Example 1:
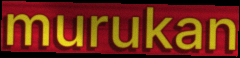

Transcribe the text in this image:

murukan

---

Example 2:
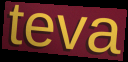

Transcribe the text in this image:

teva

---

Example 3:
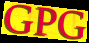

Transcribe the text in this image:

GPG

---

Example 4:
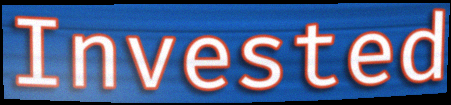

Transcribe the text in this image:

Invested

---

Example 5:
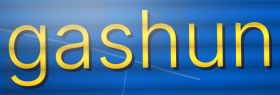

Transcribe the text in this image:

gashun